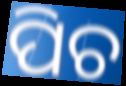
ପିଚ